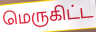
மெருகிட்ட